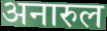
अनारुल